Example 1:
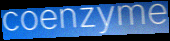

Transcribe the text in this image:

coenzyme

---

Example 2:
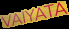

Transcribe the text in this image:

VAIYATA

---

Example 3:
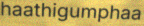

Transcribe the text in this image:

haathigumphaa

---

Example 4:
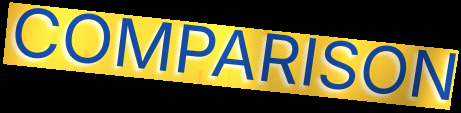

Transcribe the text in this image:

COMPARISON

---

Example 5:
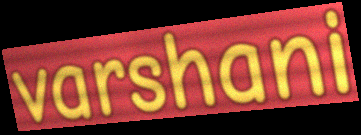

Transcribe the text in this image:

varshani